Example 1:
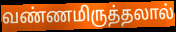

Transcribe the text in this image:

வண்ணமிருத்தலால்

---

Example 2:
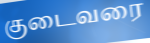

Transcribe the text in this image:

குடைவரை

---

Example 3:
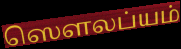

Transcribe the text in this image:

ஸௌலப்யம்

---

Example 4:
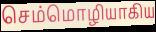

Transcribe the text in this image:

செம்மொழியாகிய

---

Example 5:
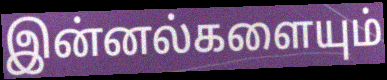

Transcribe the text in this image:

இன்னல்களையும்